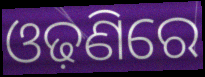
ଓଢ଼ଣିରେ